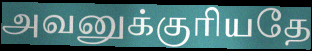
அவனுக்குரியதே